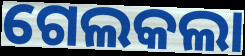
ଗେଲକଲା